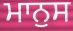
ਮਾਨੁਸ